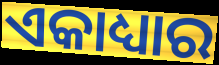
ଏକାଧ୍ୟାର